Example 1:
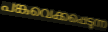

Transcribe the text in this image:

പങ്കുവെക്കപ്പെടുന്ന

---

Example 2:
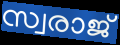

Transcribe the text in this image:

സ്വരാജ്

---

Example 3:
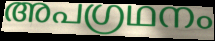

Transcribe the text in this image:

അപഗ്രഥനം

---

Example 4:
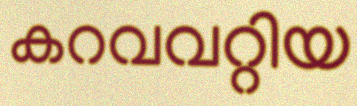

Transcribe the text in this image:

കറവവറ്റിയ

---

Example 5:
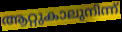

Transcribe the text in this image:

ആറ്റുകാലുനിന്ന്